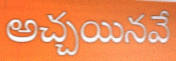
అచ్చయినవే